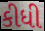
કીધી